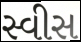
સ્વીસ